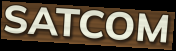
SATCOM